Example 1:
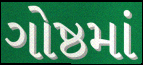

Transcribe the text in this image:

ગોષ્ઠમાં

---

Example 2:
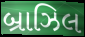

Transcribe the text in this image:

બ્રાઝિલ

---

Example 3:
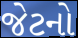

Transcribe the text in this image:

જેટનો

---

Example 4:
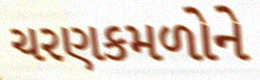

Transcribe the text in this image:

ચરણકમળોને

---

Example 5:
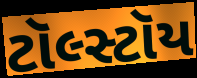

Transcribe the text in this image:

ટૉલ્સ્ટૉય